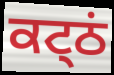
ਕਟ੍ਠਂ